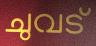
ചുവട്